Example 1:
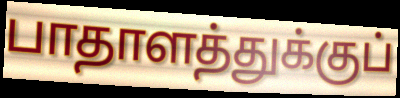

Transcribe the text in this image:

பாதாளத்துக்குப்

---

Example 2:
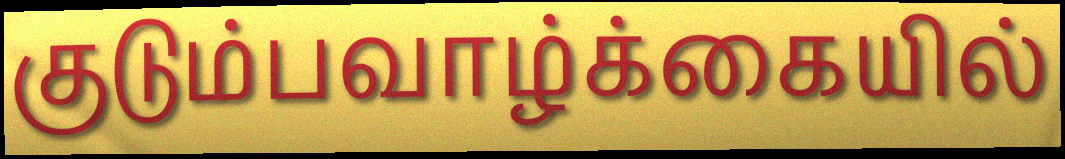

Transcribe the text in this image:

குடும்பவாழ்க்கையில்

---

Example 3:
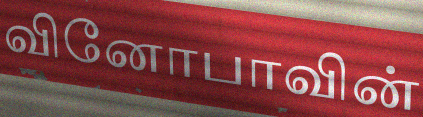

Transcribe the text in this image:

வினோபாவின்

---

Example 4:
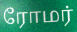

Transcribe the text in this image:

ரோமர்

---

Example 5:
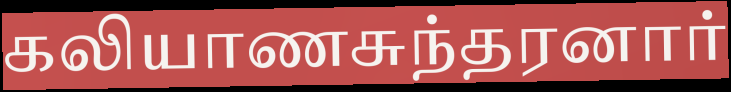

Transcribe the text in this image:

கலியாணசுந்தரனார்